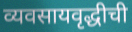
व्यवसायवृद्धीची